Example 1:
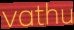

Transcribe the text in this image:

vathu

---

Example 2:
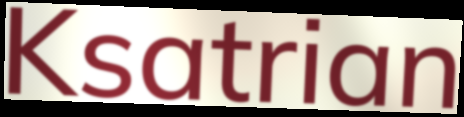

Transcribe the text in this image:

Ksatrian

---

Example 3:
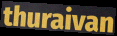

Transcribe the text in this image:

thuraivan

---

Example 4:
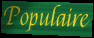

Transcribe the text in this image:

Populaire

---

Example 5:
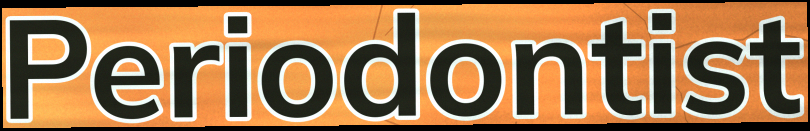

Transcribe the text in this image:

Periodontist